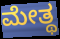
ಮೇತ್ಥ